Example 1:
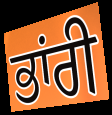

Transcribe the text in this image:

ਭਾਂਰੀ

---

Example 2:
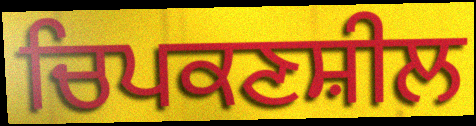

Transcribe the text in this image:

ਚਿਪਕਣਸ਼ੀਲ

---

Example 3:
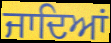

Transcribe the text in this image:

ਜਾਦਿਆਂ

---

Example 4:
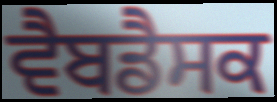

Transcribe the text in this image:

ਵੈਬਡੈਸਕ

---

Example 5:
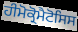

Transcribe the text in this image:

ਹੀਮੋਕ੍ਰੋਮੈਟੋਸਿਸ